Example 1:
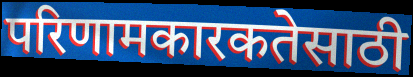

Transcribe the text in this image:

परिणामकारकतेसाठी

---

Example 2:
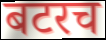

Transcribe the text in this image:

बटरच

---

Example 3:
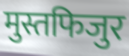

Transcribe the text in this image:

मुस्तफिजुर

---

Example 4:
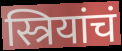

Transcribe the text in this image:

स्त्रियांचं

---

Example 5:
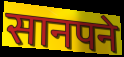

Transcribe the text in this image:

सानपने